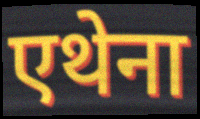
एथेना